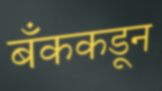
बँककडून